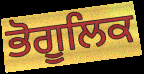
ਭੋਗੂਲਿਕ